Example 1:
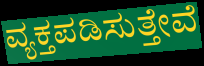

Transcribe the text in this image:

ವ್ಯಕ್ತಪಡಿಸುತ್ತೇವೆ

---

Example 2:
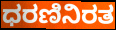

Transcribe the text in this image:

ಧರಣಿನಿರತ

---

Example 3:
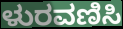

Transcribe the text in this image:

ಳುರವಣಿಸಿ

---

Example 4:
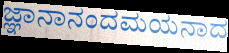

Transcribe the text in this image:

ಜ್ಞಾನಾನಂದಮಯನಾದ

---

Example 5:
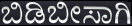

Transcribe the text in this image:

ಬಿಡಿಬೀಸಾಗಿ